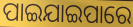
ପାଇଯାଇପାରେ